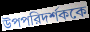
উপপরিদর্শককে